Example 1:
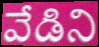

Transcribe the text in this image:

వేడిని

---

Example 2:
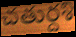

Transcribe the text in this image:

చతుర్దశి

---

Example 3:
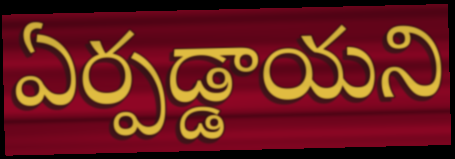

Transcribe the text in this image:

ఏర్పడ్డాయని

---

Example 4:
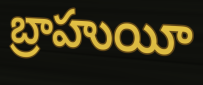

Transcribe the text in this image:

బ్రాహుయీ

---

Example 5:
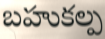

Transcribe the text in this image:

బహుకల్ప